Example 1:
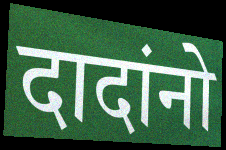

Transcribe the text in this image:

दादांनो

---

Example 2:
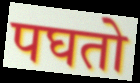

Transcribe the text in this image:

पघतो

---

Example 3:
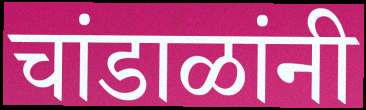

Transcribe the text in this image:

चांडाळांनी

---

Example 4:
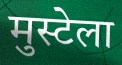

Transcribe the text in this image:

मुस्टेला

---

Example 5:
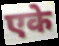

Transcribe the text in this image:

एके